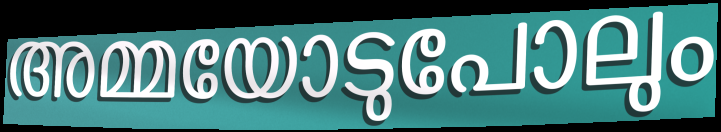
അമ്മയോടുപോലും